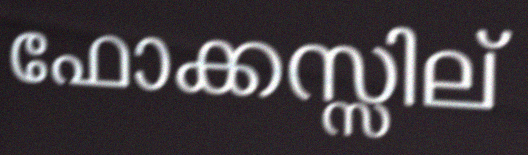
ഫോക്കസ്സില്